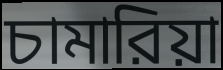
চামারিয়া